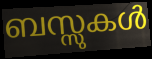
ബസ്സുകൾ